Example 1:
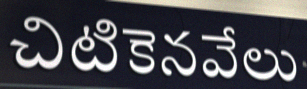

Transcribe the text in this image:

చిటికెనవేలు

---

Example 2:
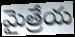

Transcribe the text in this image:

మైత్రేయ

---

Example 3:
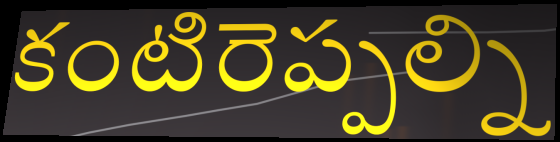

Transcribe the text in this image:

కంటిరెప్పల్ని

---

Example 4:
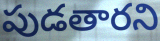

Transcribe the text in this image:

పుడతారని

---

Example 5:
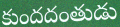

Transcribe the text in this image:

కుందదంతుడు